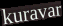
kuravar